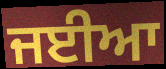
ਜਈਆ